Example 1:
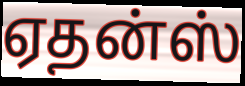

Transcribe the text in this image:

ஏதன்ஸ்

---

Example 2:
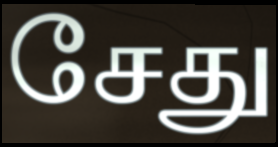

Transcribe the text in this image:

சேது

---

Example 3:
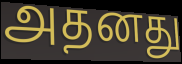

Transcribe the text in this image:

அதனது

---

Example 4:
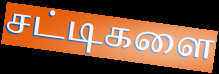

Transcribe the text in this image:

சட்டிகளை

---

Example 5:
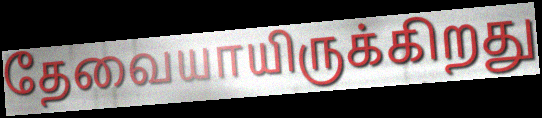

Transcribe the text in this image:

தேவையாயிருக்கிறது